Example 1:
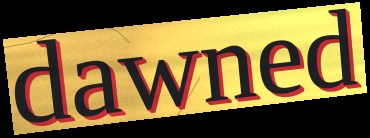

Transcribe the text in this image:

dawned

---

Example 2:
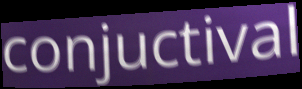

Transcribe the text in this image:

conjuctival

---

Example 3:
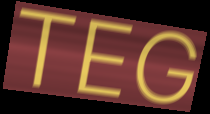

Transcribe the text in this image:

TEG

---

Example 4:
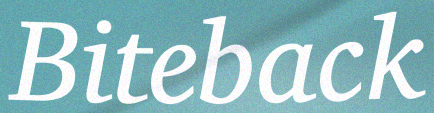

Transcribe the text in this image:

Biteback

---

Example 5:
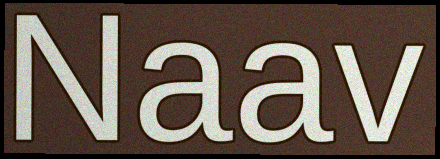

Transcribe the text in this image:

Naav